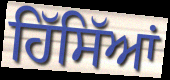
ਹਿੱਸਿੱਆਂ